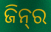
ଜିନ୍‍ର